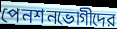
পেনশনভোগীদের